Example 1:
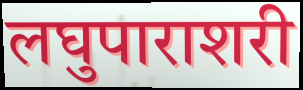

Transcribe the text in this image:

लघुपाराशरी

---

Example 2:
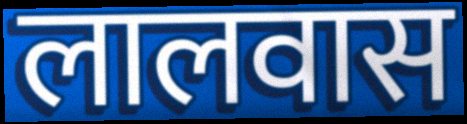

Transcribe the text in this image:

लालवास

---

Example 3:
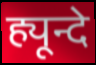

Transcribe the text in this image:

ह्यून्दे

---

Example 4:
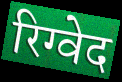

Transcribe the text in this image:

रिग्वेद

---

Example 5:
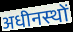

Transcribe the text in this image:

अधीनस्थों